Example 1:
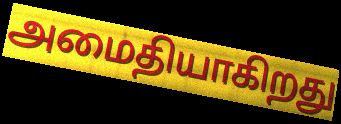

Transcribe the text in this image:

அமைதியாகிறது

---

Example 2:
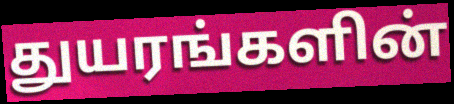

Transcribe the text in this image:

துயரங்களின்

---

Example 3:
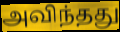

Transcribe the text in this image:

அவிந்தது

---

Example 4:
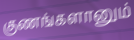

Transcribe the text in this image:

குணங்களானும்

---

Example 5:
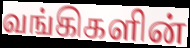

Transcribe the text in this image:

வங்கிகளின்